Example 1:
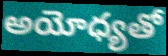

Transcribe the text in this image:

అయోధ్యతో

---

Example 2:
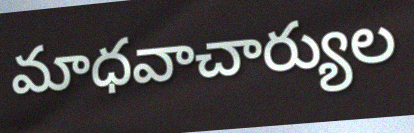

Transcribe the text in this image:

మాధవాచార్యుల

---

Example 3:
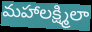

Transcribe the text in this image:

మహాలక్ష్మిలా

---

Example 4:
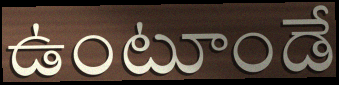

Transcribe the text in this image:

ఉంటూండే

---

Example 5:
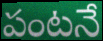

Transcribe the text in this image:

పంటనే